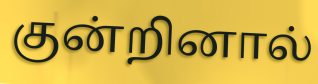
குன்றினால்